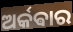
ଅର୍କଵାର